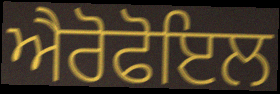
ਐਰੋਫੋਇਲ